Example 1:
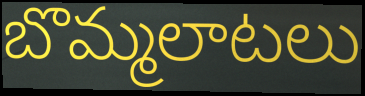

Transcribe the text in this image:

బొమ్మలాటలు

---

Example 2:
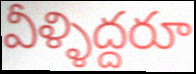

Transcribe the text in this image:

వీళ్ళిద్దరూ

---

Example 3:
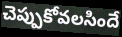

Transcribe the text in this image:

చెప్పుకోవలసిందే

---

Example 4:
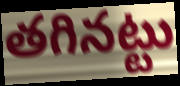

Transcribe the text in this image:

తగినట్టు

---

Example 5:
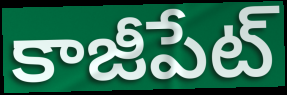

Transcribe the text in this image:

కాజీపేట్